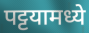
पट्टयामध्ये